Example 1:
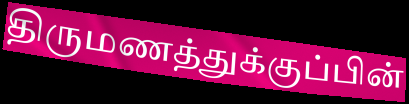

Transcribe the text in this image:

திருமணத்துக்குப்பின்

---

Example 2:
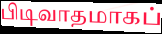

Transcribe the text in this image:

பிடிவாதமாகப்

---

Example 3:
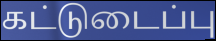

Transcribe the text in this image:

கட்டுடைப்பு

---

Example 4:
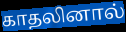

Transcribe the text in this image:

காதலினால்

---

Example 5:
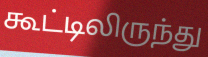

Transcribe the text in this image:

கூட்டிலிருந்து